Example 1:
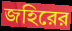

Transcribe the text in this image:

জহিরের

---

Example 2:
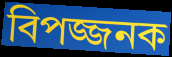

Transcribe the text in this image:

বিপজ্জনক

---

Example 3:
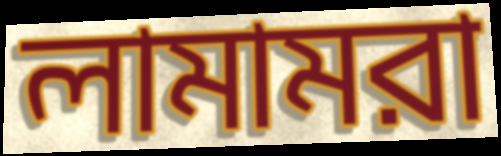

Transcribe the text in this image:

লামামরা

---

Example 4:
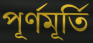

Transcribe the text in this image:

পূর্ণমূর্তি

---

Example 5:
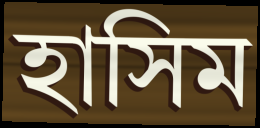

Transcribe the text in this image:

হাসিম